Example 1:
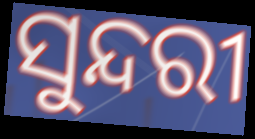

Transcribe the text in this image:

ସୁନ୍ଦରୀ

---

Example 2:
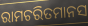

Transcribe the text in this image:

ରାମଚରିତମାନସ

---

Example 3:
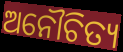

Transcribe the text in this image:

ଅନୌଚିତ୍ୟ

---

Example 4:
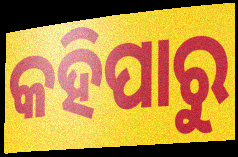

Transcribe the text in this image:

କହିପାରୁ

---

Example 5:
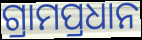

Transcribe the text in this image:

ଗ୍ରାମପ୍ରଧାନ